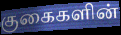
குகைகளின்